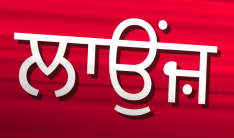
ਲਾਉਂਜ਼